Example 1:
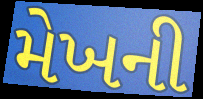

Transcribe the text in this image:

મેખની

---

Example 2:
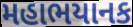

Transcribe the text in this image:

મહાભયાનક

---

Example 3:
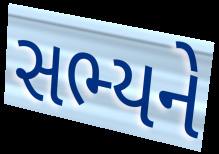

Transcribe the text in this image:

સભ્યને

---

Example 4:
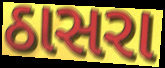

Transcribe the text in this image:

ઠાસરા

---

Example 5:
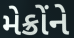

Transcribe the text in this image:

મેક્રોંને